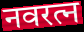
नवरत्‍न